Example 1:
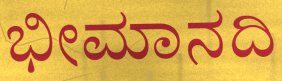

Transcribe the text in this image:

ಭೀಮಾನದಿ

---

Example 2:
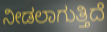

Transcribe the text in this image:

ನೀಡಲಾಗುತ್ತಿದೆ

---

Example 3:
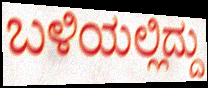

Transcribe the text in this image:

ಬಳಿಯಲ್ಲಿದ್ದು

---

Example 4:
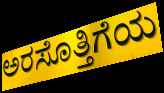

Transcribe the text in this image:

ಅರಸೊತ್ತಿಗೆಯ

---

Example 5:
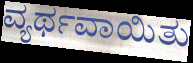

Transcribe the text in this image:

ವ್ಯರ್ಥವಾಯಿತು